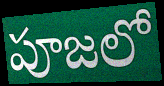
పూజలో